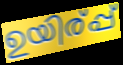
ഉയിര്പ്പ്